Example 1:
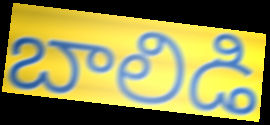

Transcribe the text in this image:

బాలిడి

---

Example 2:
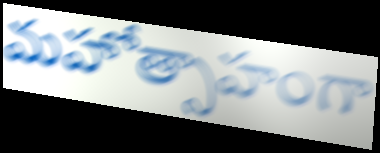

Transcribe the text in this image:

మహోత్సాహంగా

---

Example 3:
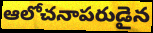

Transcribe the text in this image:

ఆలోచనాపరుడైన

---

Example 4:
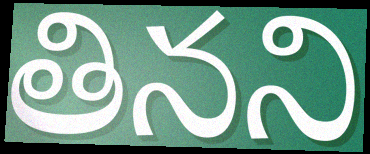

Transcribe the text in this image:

తినని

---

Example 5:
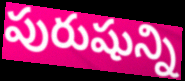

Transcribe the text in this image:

పురుషున్ని